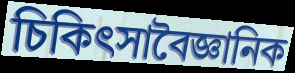
চিকিৎসাবৈজ্ঞানিক